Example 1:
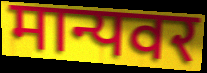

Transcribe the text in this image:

मान्यवर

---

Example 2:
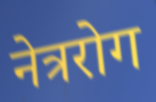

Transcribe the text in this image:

नेत्ररोग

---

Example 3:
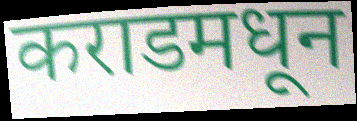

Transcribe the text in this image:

कराडमधून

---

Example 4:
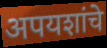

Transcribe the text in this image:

अपयशांचे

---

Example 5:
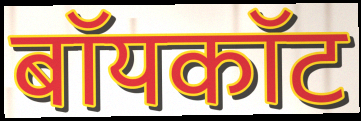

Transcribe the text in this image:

बॉयकॉट